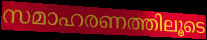
സമാഹരണത്തിലൂടെ